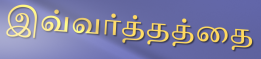
இவ்வர்த்தத்தை